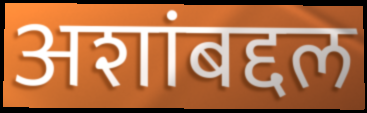
अशांबद्दल